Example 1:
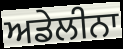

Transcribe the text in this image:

ਅਡੇਲੀਨਾ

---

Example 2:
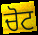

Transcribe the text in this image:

ਚੋਟ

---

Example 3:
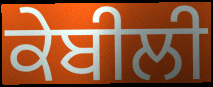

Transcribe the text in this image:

ਕੇਬੀਲੀ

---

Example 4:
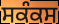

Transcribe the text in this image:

ਸਕੰਕਸ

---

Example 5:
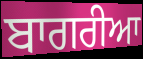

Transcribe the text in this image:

ਬਾਗਰੀਆ